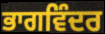
ਭਾਗਵਿੰਦਰ